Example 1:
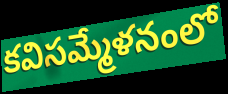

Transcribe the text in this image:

కవిసమ్మేళనంలో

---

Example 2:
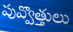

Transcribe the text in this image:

పువ్వొత్తులు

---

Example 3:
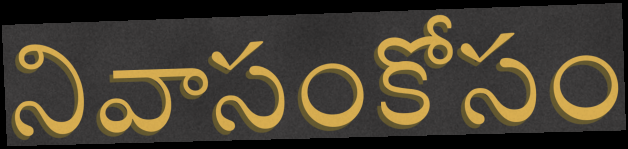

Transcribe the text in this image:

నివాసంకోసం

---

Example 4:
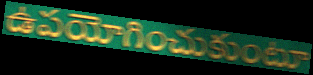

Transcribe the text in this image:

ఉపయోగించుకుంటూ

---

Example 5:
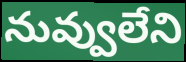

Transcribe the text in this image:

నువ్వులేని